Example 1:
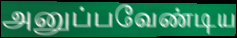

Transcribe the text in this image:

அனுப்பவேண்டிய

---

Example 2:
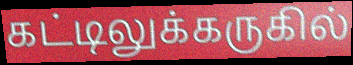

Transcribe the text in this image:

கட்டிலுக்கருகில்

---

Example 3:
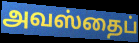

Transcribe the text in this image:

அவஸ்தைப்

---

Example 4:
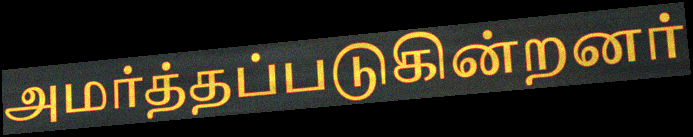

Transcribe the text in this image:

அமர்த்தப்படுகின்றனர்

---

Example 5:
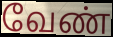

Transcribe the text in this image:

வேண்